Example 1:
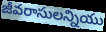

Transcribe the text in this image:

జీవరాసులన్నియు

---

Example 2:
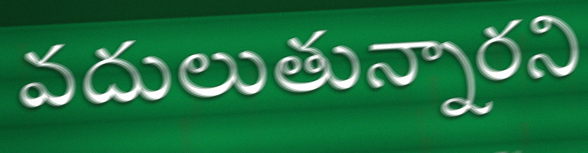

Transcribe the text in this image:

వదులుతున్నారని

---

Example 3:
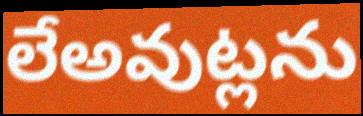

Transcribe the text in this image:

లేఅవుట్లను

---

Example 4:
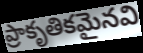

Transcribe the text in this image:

ప్రాకృతికమైనవి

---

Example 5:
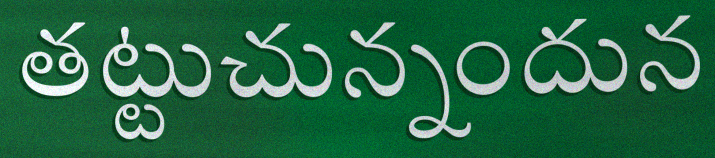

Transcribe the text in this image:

తట్టుచున్నందున